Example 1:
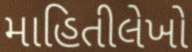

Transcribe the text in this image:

માહિતીલેખો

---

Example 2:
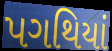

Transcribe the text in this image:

પગથિયાં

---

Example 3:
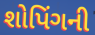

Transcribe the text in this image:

શોપિંગની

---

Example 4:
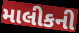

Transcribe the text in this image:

માલીકની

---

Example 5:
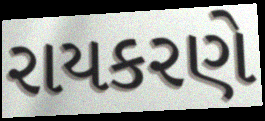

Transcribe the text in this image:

રાયકરણે